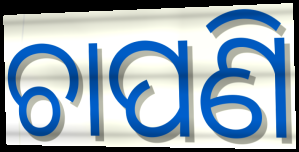
ଚାପଣି